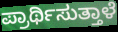
ಪ್ರಾರ್ಥಿಸುತ್ತಾಳೆ